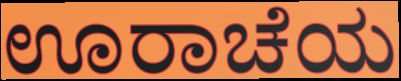
ಊರಾಚೆಯ